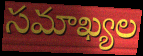
సమాఖ్యల